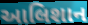
આલિશાન